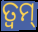
ତ୍ୱମ୍